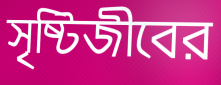
সৃষ্টিজীবের